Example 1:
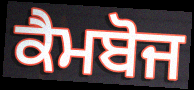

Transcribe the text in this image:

ਕੈਮਬੋਜ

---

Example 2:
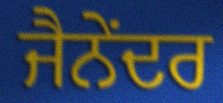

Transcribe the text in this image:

ਜੈਨੇਂਦਰ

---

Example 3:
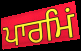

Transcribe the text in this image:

ਪਾਰਮਿਂ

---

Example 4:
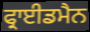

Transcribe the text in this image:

ਫ੍ਰਾਈਡਮੈਨ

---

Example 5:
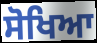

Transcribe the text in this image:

ਸੋਖਿਆ